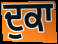
ਦੁਕਾ